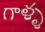
గాళ్ళ